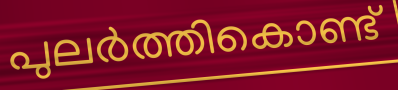
പുലർത്തികൊണ്ട്